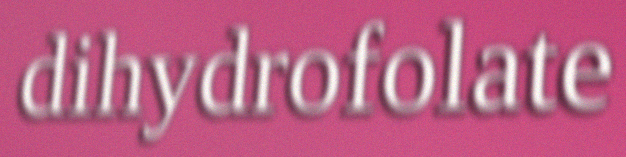
dihydrofolate